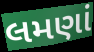
લમણાં